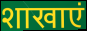
शाखाएं